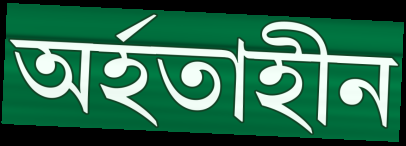
অৰ্হতাহীন